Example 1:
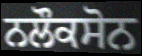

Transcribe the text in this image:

ਨਲੌਕਸੋਨ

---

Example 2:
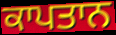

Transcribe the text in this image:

ਕਾਪਤਾਨ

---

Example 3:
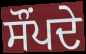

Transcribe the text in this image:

ਸੌਂਪਦੇ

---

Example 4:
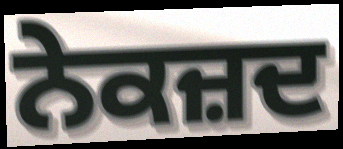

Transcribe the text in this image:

ਨੇਕਜ਼ਦ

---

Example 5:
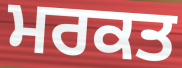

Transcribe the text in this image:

ਮਰਕਤ